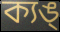
ক্যঙ্